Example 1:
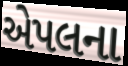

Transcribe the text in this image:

એપલના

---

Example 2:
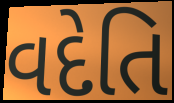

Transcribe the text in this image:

વદેતિ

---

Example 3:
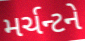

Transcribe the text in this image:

મર્ચન્ટને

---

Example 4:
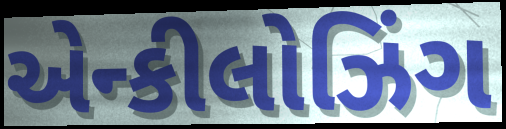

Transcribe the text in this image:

એન્કીલોઝિંગ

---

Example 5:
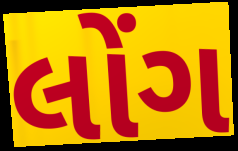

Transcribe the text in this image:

લોંગ